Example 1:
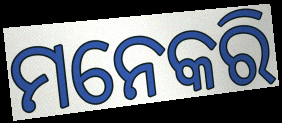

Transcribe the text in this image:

ମନେକରି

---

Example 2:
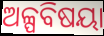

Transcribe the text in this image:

ଅଳ୍ପବିଷୟା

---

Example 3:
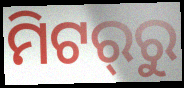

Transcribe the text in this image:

ମିଟର୍‍ରୁ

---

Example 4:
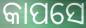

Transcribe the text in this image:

କାପସେ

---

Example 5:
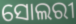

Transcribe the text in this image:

ସୋଲରୀ